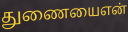
துணையைஎன்